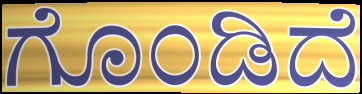
ಗೊಂಡಿದೆ